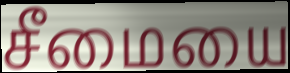
சீமையை